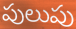
పులుపు